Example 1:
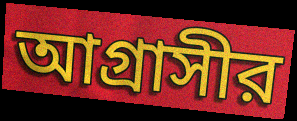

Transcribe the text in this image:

আগ্রাসীর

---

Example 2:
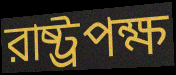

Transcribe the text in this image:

রাষ্ট্রপক্ষ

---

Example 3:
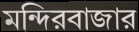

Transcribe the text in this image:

মন্দিরবাজার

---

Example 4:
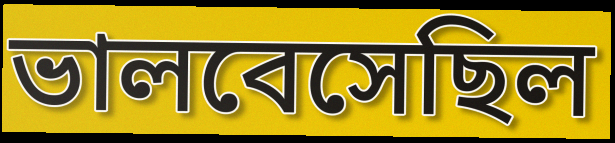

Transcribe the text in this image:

ভালবেসেছিল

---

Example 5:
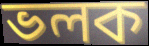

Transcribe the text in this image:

ভলক